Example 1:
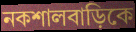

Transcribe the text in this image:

নকশালবাড়িকে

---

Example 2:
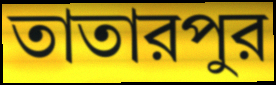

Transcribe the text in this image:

তাতারপুর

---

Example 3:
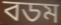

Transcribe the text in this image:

বডম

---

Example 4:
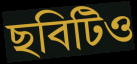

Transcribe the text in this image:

ছবিটিও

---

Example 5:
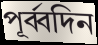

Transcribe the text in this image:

পূর্ব্বদিন